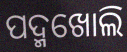
ପଦ୍ମଖୋଲି